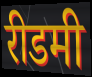
रीडमी